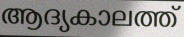
ആദ്യകാലത്ത്